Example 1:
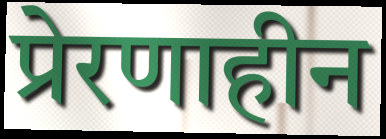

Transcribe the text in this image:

प्रेरणाहीन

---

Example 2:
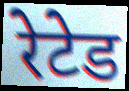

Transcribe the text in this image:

रेटेड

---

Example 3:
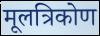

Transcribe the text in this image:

मूलत्रिकोण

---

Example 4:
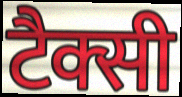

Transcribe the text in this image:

टैक्‍सी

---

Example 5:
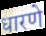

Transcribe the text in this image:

धारणे